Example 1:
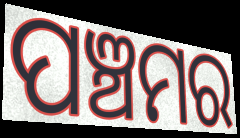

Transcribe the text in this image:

ପଞ୍ଚମର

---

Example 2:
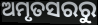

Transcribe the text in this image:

ଅମୃତସରରୁ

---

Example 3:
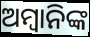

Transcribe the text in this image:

ଅମ୍ବାନିଙ୍କ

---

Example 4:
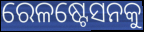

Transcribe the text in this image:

ରେଳଷ୍ଟେସନକୁ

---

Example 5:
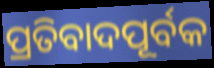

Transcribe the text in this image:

ପ୍ରତିବାଦପୂର୍ବକ